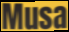
Musa